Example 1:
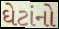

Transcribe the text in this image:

ઘેટાંનો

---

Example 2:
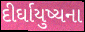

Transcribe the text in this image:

દીર્ઘાયુષ્યના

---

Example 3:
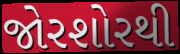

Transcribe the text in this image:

જોરશોરથી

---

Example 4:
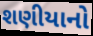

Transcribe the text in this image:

શણીયાનો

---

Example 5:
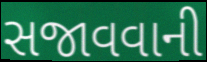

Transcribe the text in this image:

સજાવવાની